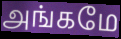
அங்கமே